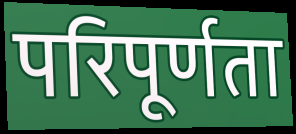
परिपूर्णता